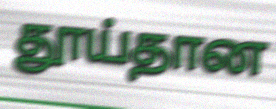
தூய்தான